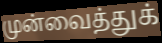
முன்வைத்துக்